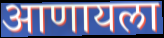
आणायला